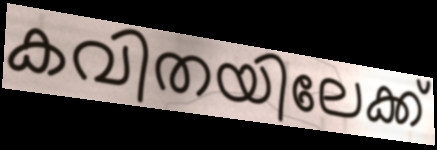
കവിതയിലേക്ക്